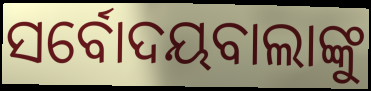
ସର୍ବୋଦୟବାଲାଙ୍କୁ